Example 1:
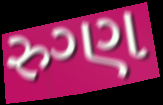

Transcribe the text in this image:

રુગ્ણ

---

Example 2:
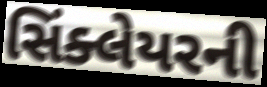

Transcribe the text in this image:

સિંક્લેયરની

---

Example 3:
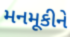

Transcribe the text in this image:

મનમૂકીને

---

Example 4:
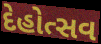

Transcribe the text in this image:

દેહોત્સવ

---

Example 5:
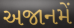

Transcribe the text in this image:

અજાનમેં